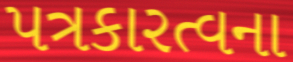
પત્રકારત્વના